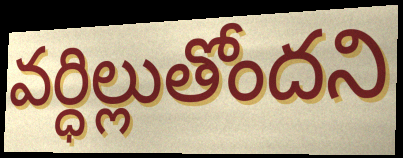
వర్ధిల్లుతోందని